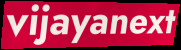
vijayanext